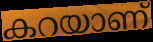
കറയാണ്